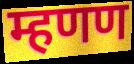
म्हणण